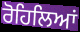
ਰੋਹਿਲਿਆਂ